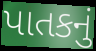
પાતકનું